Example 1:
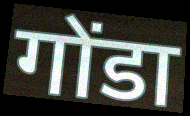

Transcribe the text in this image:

गोंडा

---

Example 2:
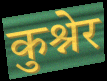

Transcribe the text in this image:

कुश्नेर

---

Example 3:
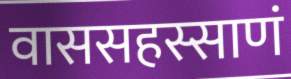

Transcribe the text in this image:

वाससहस्साणं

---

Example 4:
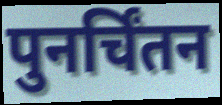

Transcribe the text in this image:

पुनर्चिंतन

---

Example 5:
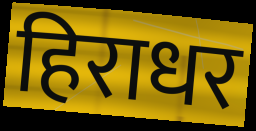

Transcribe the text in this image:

हिराधर